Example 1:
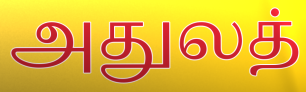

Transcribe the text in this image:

அதுலத்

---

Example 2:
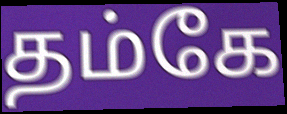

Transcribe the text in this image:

தம்கே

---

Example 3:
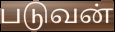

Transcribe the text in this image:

படுவன்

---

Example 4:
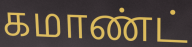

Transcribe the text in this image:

கமாண்ட்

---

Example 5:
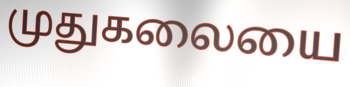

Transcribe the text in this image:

முதுகலையை